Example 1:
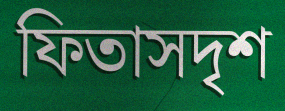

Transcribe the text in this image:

ফিতাসদৃশ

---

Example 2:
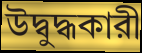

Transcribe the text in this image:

উদ্বুদ্ধকারী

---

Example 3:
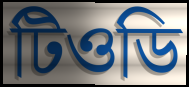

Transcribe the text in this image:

টিওডি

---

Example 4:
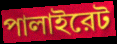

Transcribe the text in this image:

পালাইরেট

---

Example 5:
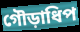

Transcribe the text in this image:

গৌড়াধিপ